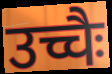
उच्चैः